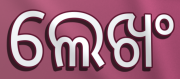
ଲେଖଂ